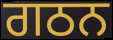
ਗਠਨ